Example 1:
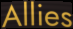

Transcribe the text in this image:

Allies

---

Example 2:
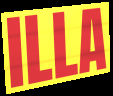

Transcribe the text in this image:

ILLA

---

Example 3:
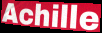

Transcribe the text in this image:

Achille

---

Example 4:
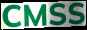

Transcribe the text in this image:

CMSS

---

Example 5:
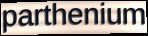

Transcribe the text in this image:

parthenium